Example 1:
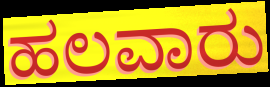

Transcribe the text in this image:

ಹಲವಾರು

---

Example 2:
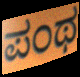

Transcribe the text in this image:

ಪಂಥ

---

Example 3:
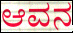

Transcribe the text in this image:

ಆವನ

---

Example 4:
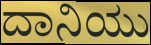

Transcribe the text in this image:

ದಾನಿಯು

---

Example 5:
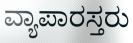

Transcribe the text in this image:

ವ್ಯಾಪಾರಸ್ತರು